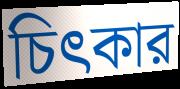
চিৎকার